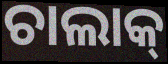
ଚାଲାକ୍